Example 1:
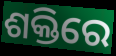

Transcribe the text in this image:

ଶକ୍ତିରେ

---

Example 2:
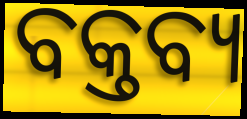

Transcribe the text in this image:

ବକ୍ତବ୍ଯ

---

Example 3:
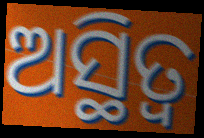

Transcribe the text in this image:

ଅସ୍ଥିତ୍ୱ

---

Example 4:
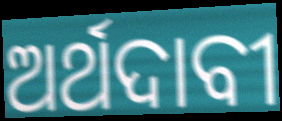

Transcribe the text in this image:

ଅର୍ଥଦାବୀ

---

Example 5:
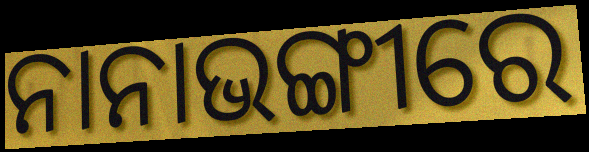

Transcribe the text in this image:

ନାନାଭଙ୍ଗୀରେ